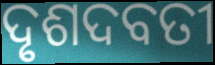
ଦୃଶଦବତୀ